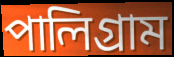
পালিগ্রাম